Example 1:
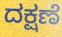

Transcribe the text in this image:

ದಕ್ಷಣೆ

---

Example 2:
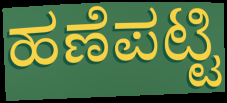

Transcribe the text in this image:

ಹಣೆಪಟ್ಟಿ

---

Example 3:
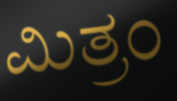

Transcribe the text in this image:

ಮಿತ್ರಂ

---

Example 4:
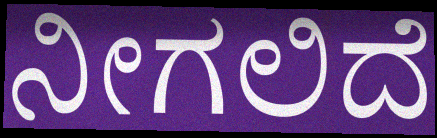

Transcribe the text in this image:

ನೀಗಲಿದೆ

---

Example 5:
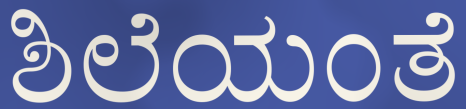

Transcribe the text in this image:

ಶಿಲೆಯಂತೆ